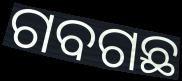
ଗବଗଛ